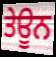
ਤੇਊਨ